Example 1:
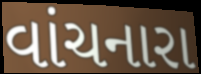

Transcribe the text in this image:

વાંચનારા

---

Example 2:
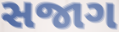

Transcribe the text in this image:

સજાગ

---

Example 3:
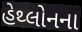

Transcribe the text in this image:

હેથ્લોનના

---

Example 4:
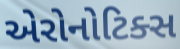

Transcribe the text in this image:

એરોનોટિક્સ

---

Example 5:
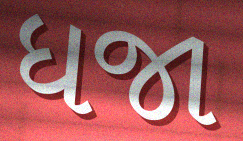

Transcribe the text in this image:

ધજા